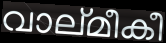
വാല്മീകീ